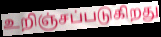
உறிஞ்சப்படுகிறது